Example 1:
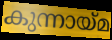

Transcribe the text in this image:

കുന്നായ്മ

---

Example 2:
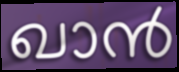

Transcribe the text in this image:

ഖാൻ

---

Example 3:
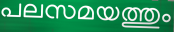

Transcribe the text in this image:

പലസമയത്തും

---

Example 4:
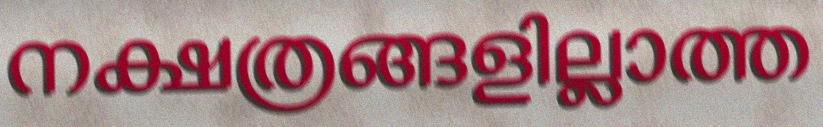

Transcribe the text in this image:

നക്ഷത്രങ്ങളില്ലാത്ത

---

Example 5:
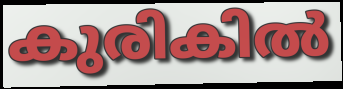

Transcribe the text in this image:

കുരികിൽ